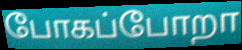
போகப்போறா